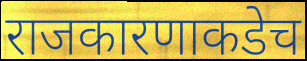
राजकारणाकडेच